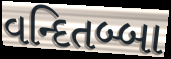
વન્દિતબ્બા